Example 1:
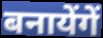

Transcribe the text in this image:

बनायेंगें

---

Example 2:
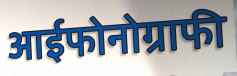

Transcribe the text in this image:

आईफोनोग्राफी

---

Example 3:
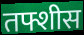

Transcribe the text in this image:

तफ्शीस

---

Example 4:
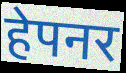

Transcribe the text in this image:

हेपनर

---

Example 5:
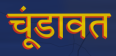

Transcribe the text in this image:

चूंडावत